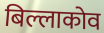
बिल्लाकोव